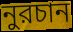
নুরচান